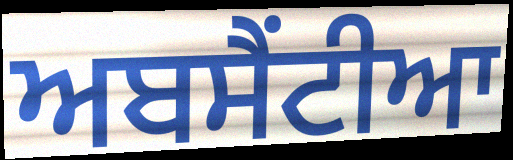
ਅਬਸੈਂਟੀਆ